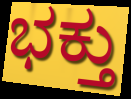
ಭಕ್ತು